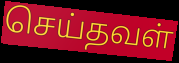
செய்தவள்